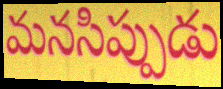
మనసిప్పుడు